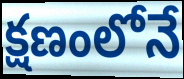
క్షణంలోనే